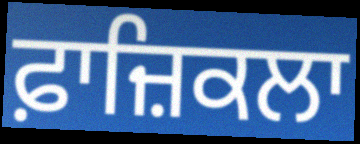
ਫ਼ਾਜ਼ਿਕਲਾ